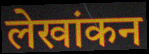
लेखांकन